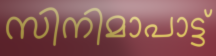
സിനിമാപാട്ട്